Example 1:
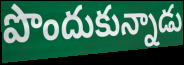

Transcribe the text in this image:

పొందుకున్నాడు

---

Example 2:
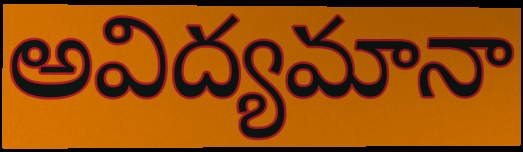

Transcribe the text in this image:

అవిద్యమానా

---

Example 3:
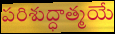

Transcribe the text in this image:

పరిశుద్ధాత్మయే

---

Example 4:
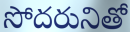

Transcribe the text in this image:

సోదరునితో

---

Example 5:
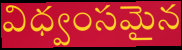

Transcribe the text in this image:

విధ్వంసమైన